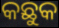
କଛୁକ